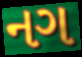
નગ